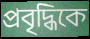
প্রবৃদ্ধিকে